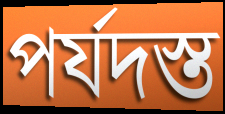
পর্যদস্ত